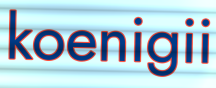
koenigii